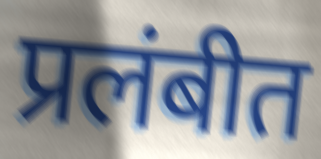
प्रलंबीत